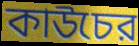
কাউচের